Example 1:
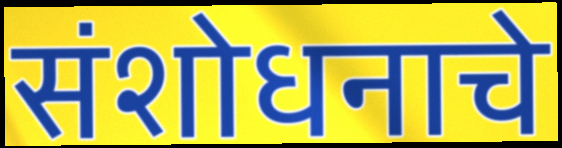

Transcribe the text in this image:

संशोधनाचे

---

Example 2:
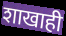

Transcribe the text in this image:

शाखाही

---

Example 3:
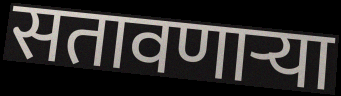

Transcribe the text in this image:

सतावणार्‍या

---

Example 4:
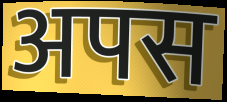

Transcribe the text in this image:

अपस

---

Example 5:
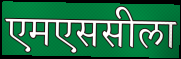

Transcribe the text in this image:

एमएससीला